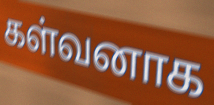
கள்வனாக